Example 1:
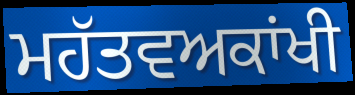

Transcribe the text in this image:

ਮਹੱਤਵਅਕਾਂਖੀ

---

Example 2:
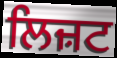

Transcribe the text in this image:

ਲਿਜ਼ਟ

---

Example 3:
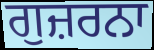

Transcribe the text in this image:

ਗੁਜ਼ਰਨਾ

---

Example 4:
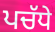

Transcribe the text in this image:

ਪਚੱਧੇ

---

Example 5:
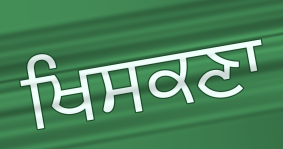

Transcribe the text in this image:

ਖਿਸਕਣਾ